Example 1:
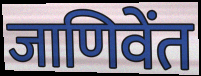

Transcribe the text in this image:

जाणिवेंत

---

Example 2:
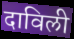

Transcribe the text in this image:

दाविली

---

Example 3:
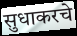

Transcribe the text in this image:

सुधाकरचे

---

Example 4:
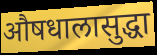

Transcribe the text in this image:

औषधालासुद्धा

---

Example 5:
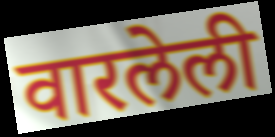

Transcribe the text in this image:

वारलेली